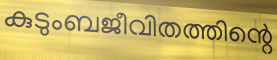
കുടുംബജീവിതത്തിന്റെ